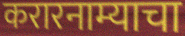
करारनाम्याचा